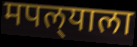
मपल्याला